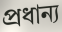
প্রধান্য